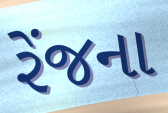
રેંજના